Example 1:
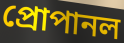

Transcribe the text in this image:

প্রোপানল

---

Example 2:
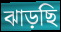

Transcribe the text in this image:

ঝাড়ছি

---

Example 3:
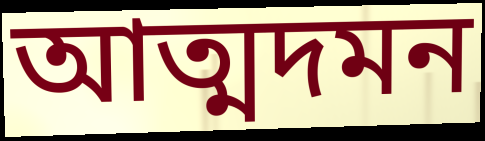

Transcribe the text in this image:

আত্মদমন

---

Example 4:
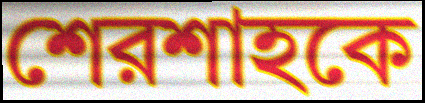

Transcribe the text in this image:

শেরশাহকে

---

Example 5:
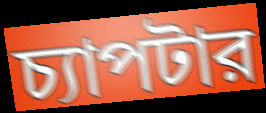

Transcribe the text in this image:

চ্যাপটার